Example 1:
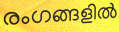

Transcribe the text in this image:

രംഗങ്ങളിൽ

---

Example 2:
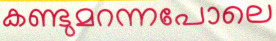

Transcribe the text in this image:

കണ്ടുമറന്നപോലെ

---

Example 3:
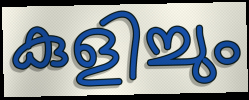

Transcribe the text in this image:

കുളിച്ചും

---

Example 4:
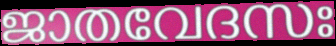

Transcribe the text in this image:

ജാതവേദസഃ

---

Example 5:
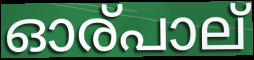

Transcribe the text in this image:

ഓര്പാല്